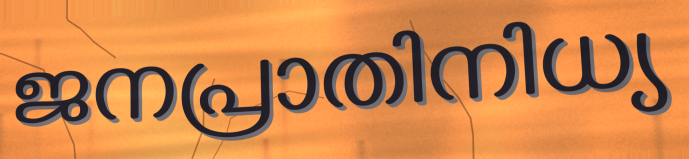
ജനപ്രാതിനിധ്യ